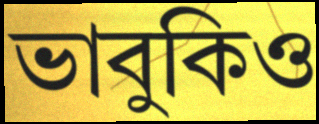
ভাবুকিও